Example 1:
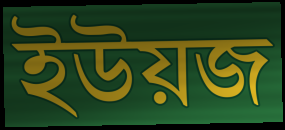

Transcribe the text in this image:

ইউয়জ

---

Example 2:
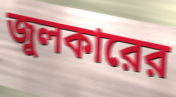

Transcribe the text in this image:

জুলকারের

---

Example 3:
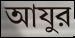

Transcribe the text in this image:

আযুর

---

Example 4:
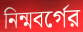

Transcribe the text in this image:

নিন্মবর্গের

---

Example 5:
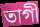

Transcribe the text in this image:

তাগী